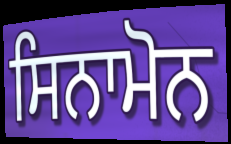
ਸਿਨਾਮੋਨ